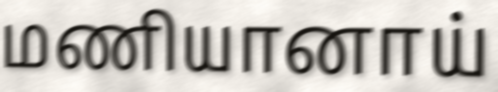
மணியானாய்